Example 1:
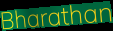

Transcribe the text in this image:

Bharathan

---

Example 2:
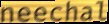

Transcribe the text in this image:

neechal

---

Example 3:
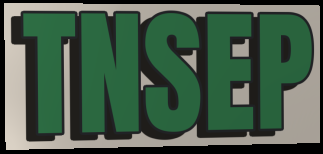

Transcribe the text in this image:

TNSEP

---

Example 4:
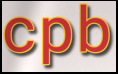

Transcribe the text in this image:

cpb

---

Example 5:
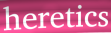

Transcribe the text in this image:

heretics